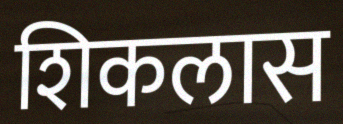
शिकलास